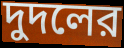
দুদলের